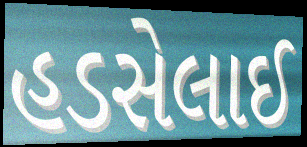
હડસેલાઈ